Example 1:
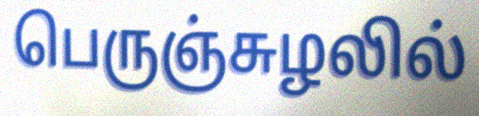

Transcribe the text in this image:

பெருஞ்சுழலில்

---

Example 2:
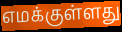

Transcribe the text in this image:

எமக்குள்ளது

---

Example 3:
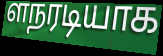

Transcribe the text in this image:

ளநரடியாக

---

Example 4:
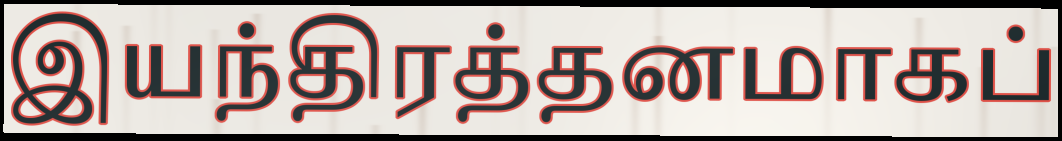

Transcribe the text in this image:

இயந்திரத்தனமாகப்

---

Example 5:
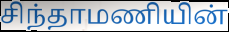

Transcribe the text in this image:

சிந்தாமணியின்